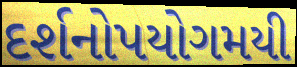
દર્શનોપયોગમયી